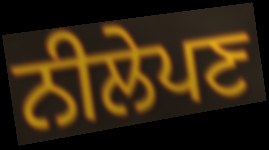
ਨੀਲੇਪਣ